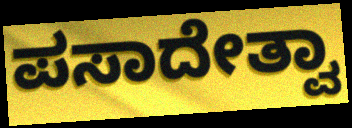
ಪಸಾದೇತ್ವಾ